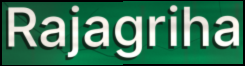
Rajagriha